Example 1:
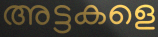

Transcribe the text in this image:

അട്ടകളെ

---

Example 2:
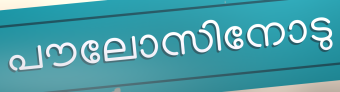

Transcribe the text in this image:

പൗലോസിനോടു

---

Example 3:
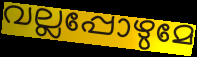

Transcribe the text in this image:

വല്ലപ്പോഴുമേ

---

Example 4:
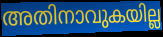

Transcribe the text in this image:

അതിനാവുകയില്ല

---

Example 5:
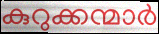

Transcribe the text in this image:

കുറുക്കന്മാർ